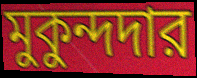
মুকুন্দদার